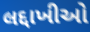
લદ્દાખીઓ